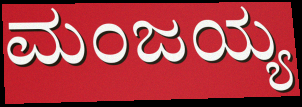
ಮಂಜಯ್ಯ